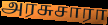
அரசுசாரா